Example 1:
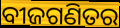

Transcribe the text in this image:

ବୀଜଗଣିତର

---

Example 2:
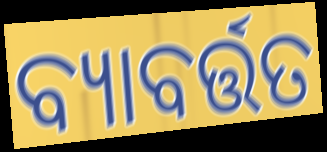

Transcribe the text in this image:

ବ୍ୟାବର୍ତ୍ତତ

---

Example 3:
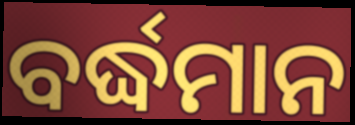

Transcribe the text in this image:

ବର୍ଦ୍ଧମାନ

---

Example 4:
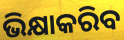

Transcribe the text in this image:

ଭିକ୍ଷାକରିବ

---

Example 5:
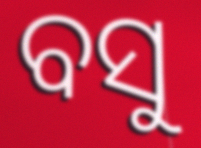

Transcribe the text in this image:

ବସୁ